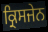
ਕ੍ਰਿਸਜੇਨ